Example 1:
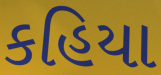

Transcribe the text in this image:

કહિયા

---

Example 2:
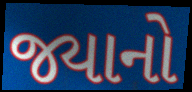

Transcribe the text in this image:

જ્યાનો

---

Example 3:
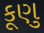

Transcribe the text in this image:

કૂણુ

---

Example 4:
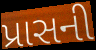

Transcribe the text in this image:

પ્રાસની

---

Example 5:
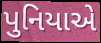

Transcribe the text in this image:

પુનિયાએ